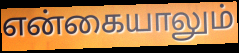
என்கையாலும்